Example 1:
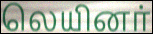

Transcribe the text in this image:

லெயினர்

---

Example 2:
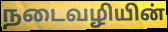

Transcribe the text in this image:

நடைவழியின்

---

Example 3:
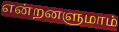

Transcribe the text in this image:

என்றனளுமாம்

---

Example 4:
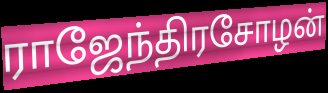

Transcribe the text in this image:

ராஜேந்திரசோழன்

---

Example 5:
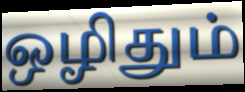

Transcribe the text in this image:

ஒழிதும்